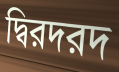
দ্বিরদরদ